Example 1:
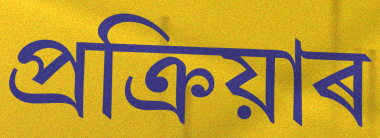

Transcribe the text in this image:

প্ৰক্ৰিয়াৰ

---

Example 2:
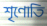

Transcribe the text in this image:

শৃণোতি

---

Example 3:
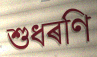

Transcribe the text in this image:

শুধৰণি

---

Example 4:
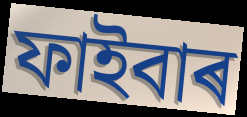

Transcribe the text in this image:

ফাইবাৰ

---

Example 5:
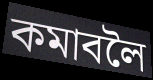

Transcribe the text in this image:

কমাবলৈ